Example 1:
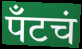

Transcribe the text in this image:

पँटचं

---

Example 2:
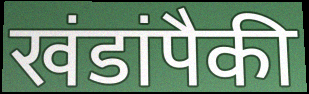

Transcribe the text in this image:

खंडांपैकी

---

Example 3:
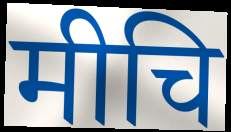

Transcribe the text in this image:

मीचि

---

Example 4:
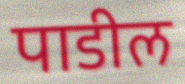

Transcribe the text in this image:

पाडील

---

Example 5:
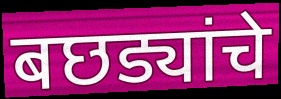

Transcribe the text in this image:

बछड्यांचे